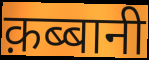
क़ब्बानी